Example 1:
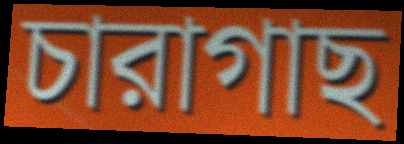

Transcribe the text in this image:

চারাগাছ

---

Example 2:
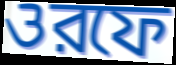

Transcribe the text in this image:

ওরফে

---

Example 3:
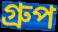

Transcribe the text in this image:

গ্রুপ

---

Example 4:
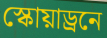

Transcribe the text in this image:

স্কোয়াড্রনে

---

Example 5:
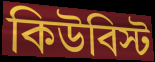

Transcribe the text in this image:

কিউবিস্ট